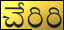
చేరిరి